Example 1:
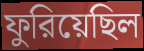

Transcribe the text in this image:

ফুরিয়েছিল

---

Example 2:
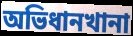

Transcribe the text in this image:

অভিধানখানা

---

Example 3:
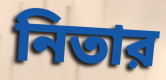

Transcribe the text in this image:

নিতার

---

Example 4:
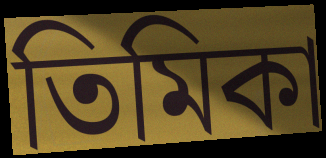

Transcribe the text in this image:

তিমিকা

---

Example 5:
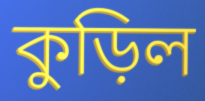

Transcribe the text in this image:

কুড়িল